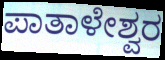
ಪಾತಾಳೇಶ್ವರ